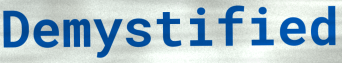
Demystified